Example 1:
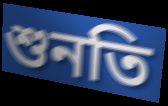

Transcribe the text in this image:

শুনতি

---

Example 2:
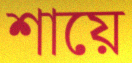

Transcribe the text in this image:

শায়ে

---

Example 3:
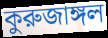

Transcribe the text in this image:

কুরুজাঙ্গল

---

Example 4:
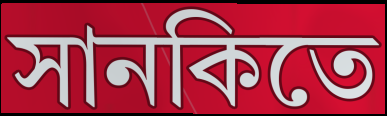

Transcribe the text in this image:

সানকিতে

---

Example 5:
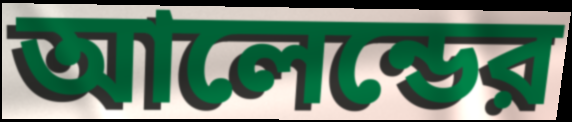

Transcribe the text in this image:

আলেন্ডের